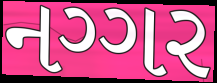
નગ્ગર